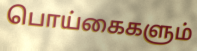
பொய்கைகளும்